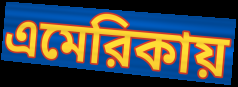
এমেরিকায়